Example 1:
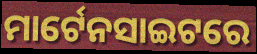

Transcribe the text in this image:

ମାର୍ଟେନସାଇଟରେ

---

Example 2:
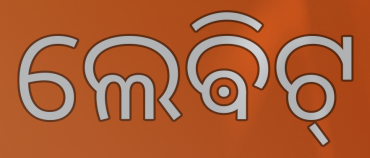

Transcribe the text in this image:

ଲେଵିଟ୍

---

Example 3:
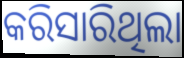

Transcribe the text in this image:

କରିସାରିଥିଲା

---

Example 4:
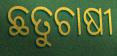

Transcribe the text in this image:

ଛତୁଚାଷୀ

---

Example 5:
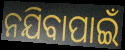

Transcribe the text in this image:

ନଯିବାପାଇଁ